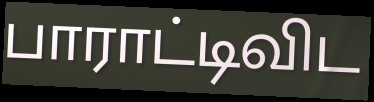
பாராட்டிவிட